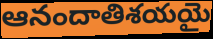
ఆనందాతిశయయై